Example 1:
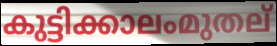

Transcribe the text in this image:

കുട്ടിക്കാലംമുതല്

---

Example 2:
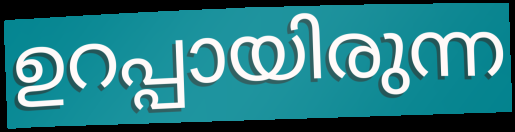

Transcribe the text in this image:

ഉറപ്പായിരുന്ന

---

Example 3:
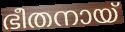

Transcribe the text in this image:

ഭീതനായ്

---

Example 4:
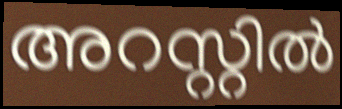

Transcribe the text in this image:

അറസ്റ്റിൽ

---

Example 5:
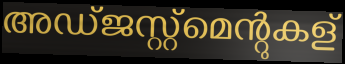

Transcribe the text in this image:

അഡ്ജസ്റ്റ്മെന്റുകള്